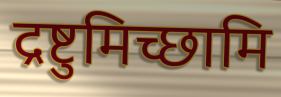
द्रष्टुमिच्छामि